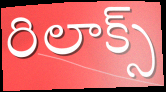
రిలాక్స్